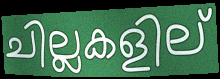
ചില്ലകളില്